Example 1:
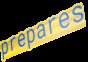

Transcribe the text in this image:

prepares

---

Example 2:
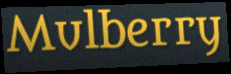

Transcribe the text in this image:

Mulberry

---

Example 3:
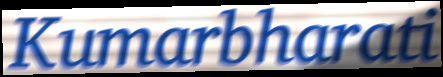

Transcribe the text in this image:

Kumarbharati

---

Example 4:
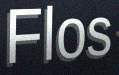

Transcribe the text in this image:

Flos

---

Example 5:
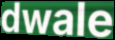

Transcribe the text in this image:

dwale